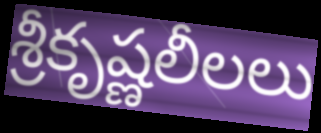
శ్రీకృష్ణలీలలు